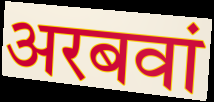
अरबवां